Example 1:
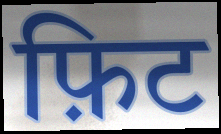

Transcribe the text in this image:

फ़िट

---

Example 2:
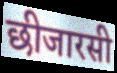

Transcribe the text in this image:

छीजारसी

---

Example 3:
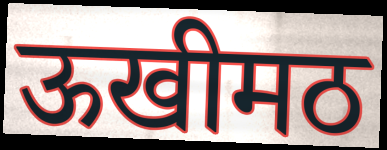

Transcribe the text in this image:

ऊखीमठ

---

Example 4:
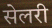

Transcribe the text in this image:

सेलरी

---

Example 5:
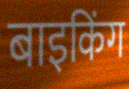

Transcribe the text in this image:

बाइकिंग